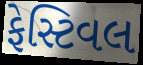
ફેસ્ટિવલ